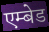
एम्बेड